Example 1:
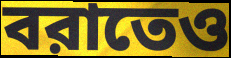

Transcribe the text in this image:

বরাতেও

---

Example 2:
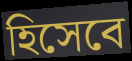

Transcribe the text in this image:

হিসেবে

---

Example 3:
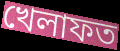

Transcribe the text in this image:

খেলাফত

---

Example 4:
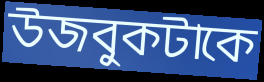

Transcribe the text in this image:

উজবুকটাকে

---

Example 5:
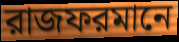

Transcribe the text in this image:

রাজফরমানে